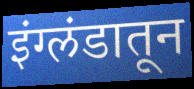
इंग्लंडातून